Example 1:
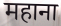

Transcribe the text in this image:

महाना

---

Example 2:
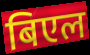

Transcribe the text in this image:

बिएल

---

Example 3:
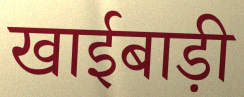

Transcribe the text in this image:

खाईबाड़ी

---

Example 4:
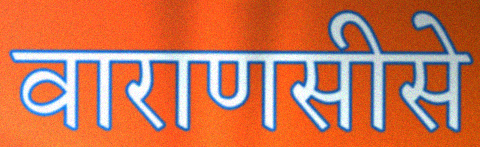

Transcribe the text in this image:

वाराणसीसे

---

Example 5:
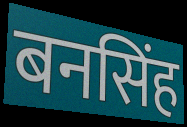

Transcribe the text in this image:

बनसिंह